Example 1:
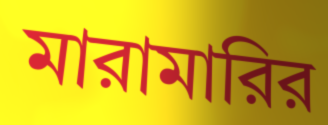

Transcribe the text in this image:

মারামারির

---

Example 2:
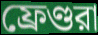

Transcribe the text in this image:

ফ্রেণ্ডরা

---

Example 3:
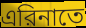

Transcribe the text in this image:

এরিনাতে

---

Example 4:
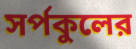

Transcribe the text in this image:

সর্পকুলের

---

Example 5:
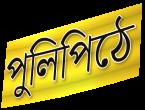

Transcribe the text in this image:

পুলিপিঠে